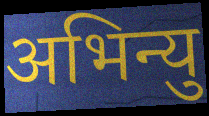
अभिन्यु